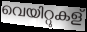
വെയിറ്റുകള്